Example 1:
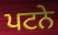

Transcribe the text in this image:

ਪਟਨੇ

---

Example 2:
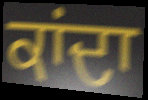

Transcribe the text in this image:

ਕਾਂਦਾ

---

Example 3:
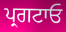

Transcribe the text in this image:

ਪ੍ਰਗਟਾਓ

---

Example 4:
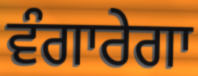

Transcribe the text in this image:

ਵੰਗਾਰੇਗਾ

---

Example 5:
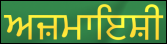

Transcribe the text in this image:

ਅਜ਼ਮਾਇਸ਼ੀ